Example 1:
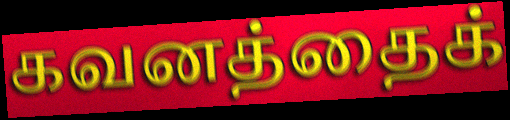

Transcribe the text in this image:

கவனத்தைக்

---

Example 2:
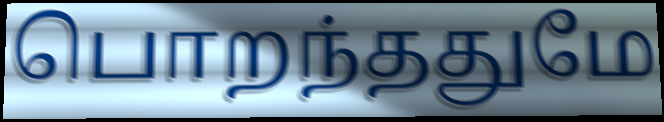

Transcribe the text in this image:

பொறந்ததுமே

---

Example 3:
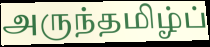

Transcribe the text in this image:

அருந்தமிழ்ப்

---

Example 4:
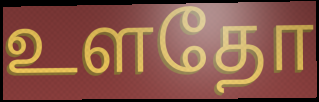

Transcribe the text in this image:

உளதோ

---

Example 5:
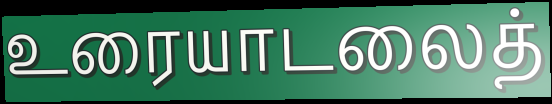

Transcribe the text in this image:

உரையாடலைத்